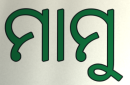
ମାମୁ